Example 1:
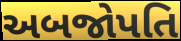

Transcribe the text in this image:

અબજોપતિ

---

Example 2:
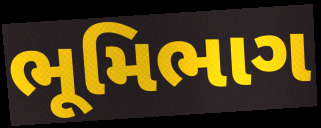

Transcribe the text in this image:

ભૂમિભાગ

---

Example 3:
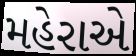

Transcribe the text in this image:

મહેરાએ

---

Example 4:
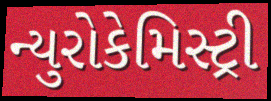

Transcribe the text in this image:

ન્યુરોકેમિસ્ટ્રી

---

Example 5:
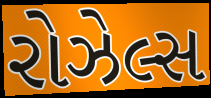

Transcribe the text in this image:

રોઝેલ્સ